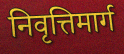
निवृत्तिमार्ग